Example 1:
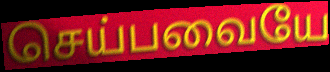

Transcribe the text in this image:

செய்பவையே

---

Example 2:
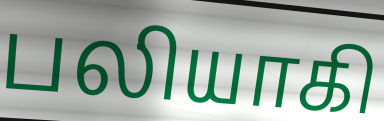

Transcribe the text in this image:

பலியாகி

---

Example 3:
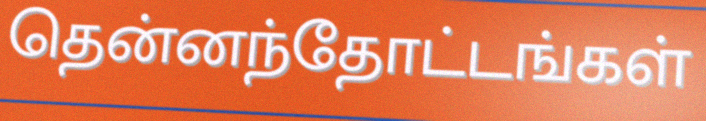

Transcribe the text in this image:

தென்னந்தோட்டங்கள்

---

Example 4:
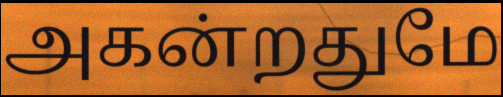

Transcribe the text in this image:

அகன்றதுமே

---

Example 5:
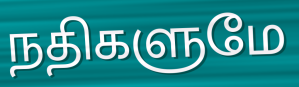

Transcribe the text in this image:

நதிகளுமே